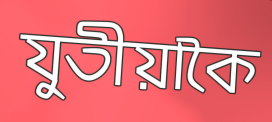
যুতীয়াকৈ